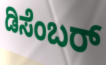
ಡಿಸೆಂಬರ್